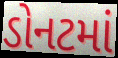
ડોનટમાં